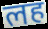
लह